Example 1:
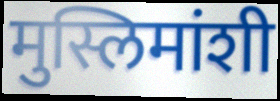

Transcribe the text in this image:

मुस्लिमांशी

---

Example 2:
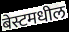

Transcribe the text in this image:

बेस्टमधील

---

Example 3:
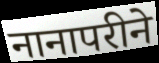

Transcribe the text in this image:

नानापरीने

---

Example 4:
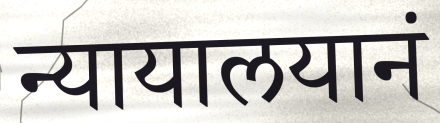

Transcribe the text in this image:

न्यायालयानं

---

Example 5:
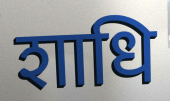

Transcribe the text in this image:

शाधि